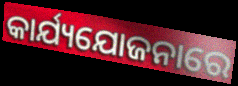
କାର୍ଯ୍ୟଯୋଜନାରେ